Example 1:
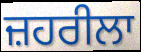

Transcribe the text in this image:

ਜ਼ਹਰੀਲਾ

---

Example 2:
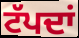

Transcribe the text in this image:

ਟੱਪਦਾਂ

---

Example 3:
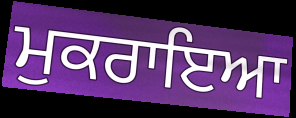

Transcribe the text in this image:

ਮੁਕਰਾਇਆ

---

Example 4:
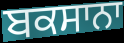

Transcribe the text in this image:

ਬਕਸਾਨਾ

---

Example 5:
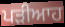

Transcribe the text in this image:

ਪੜੀਆਹ